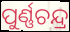
ପୁର୍ଣ୍ଣଚନ୍ଦ୍ର